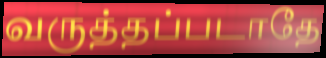
வருத்தப்படாதே